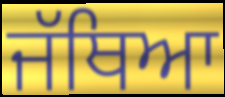
ਜੱਥਿਆ